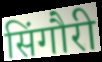
सिंगौरी